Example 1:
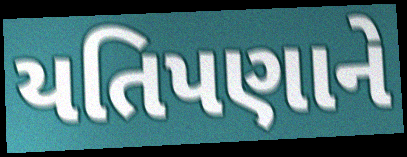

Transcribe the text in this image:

યતિપણાને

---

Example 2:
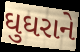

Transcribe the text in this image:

ઘુઘરાને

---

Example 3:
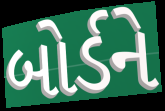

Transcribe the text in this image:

બોર્ડને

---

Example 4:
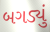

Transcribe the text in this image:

બગડ્યું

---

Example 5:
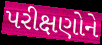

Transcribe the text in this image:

પરીક્ષણોને